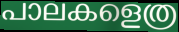
പാലകളെത്ര